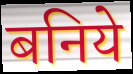
बनिये